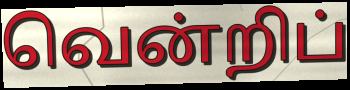
வென்றிப்